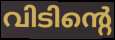
വിടിന്റെ